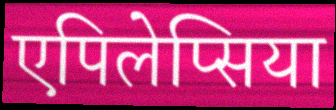
एपिलेप्सिया